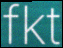
fkt